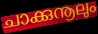
ചാക്കുനൂലും